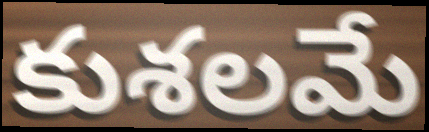
కుశలమే